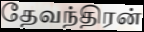
தேவந்திரன்